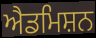
ਐਡਮਿਸ਼ਨ